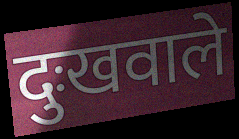
दुःखवाले